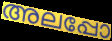
അലപ്പോ